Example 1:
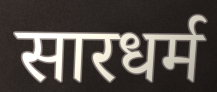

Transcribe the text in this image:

सारधर्म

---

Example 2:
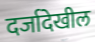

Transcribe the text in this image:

दर्जादेखील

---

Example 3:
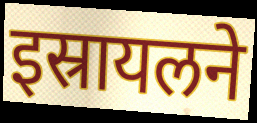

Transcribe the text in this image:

इस्रायलने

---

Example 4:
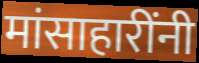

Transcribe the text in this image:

मांसाहारींनी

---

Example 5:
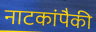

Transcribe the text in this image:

नाटकांपैकी